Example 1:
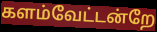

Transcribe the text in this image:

களம்வேட்டன்றே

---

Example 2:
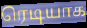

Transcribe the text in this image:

ரெடியாக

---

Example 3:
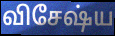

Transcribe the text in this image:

விசேஷ்ய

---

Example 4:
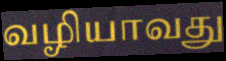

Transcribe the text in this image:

வழியாவது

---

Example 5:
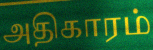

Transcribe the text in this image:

அதிகாரம்